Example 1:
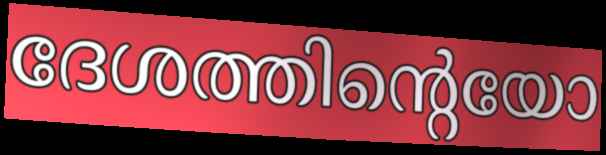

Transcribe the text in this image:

ദേശത്തിന്റെയോ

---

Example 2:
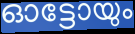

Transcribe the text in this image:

ഓട്ടോയും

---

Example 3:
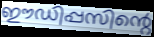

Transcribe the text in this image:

ഈഡിപ്പസിന്റെ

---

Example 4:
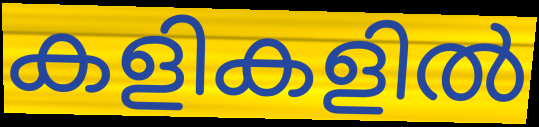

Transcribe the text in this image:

കളികളിൽ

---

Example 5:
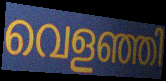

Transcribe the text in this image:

വെളഞ്ഞി